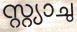
സ്റ്റ്യാചു